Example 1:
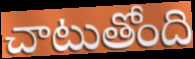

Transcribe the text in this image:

చాటుతోంది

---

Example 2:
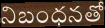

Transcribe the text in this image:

నిబంధనతో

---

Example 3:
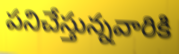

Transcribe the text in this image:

పనిచేస్తున్నవారికి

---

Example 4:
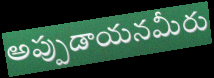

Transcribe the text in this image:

అప్పుడాయనమీరు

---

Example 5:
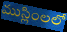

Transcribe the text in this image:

ముస్లింలలో